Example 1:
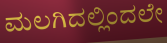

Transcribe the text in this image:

ಮಲಗಿದಲ್ಲಿಂದಲೇ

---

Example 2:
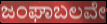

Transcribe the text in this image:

ಜಂಘಾಬಲವೇ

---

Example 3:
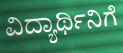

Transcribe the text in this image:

ವಿದ್ಯಾರ್ಥಿನಿಗೆ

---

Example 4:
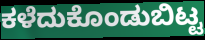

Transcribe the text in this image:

ಕಳೆದುಕೊಂಡುಬಿಟ್ಟ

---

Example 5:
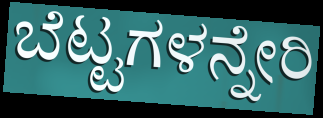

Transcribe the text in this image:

ಬೆಟ್ಟಗಳನ್ನೇರಿ